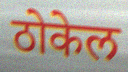
ठोकेल